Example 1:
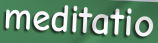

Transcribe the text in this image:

meditatio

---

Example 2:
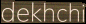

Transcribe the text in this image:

dekhchi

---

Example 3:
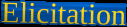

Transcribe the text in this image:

Elicitation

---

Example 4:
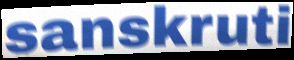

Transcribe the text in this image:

sanskruti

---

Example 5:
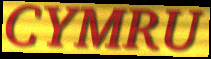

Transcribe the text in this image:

CYMRU